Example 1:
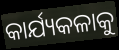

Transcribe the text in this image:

କାର୍ଯ୍ୟକଳାକୁ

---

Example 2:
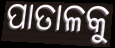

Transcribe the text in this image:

ପାତାଳକୁ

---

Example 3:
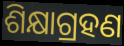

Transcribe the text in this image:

ଶିକ୍ଷାଗ୍ରହଣ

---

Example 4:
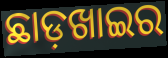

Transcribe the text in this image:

ଛାଡ଼ଖାଇର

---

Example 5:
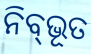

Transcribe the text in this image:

ନିବ୍‌ଭୂତ